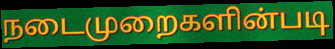
நடைமுறைகளின்படி